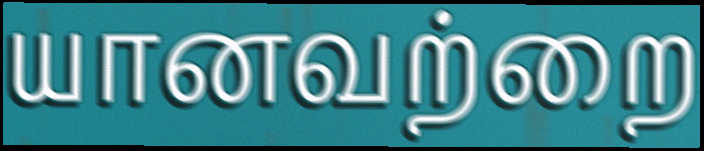
யானவற்றை